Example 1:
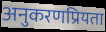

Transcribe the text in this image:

अनुकरणप्रियता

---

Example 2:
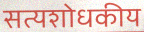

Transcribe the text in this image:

सत्यशोधकीय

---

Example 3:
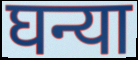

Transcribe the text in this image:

घन्या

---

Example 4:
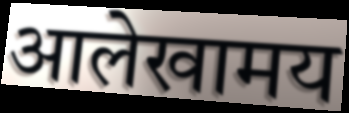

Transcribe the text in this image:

आलेखामय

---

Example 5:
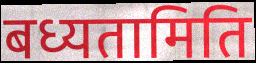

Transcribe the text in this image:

बध्यतामिति